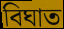
বিঘাত